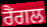
ਰੈਂਗਲ